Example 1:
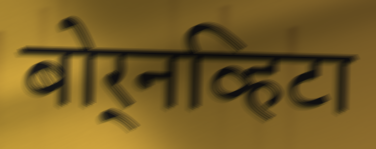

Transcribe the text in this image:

बोर्नव्हिटा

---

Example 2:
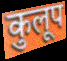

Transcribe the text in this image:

कुलूप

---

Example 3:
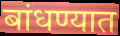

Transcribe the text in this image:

बांधण्‍यात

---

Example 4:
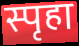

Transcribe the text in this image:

स्पृहा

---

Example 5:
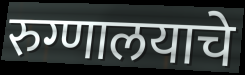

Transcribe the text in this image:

रुग्णालयाचे